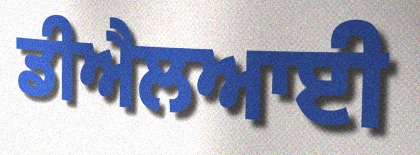
ਡੀਐਲਆਈ